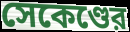
সেকেণ্ডের